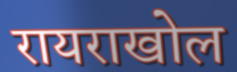
रायराखोल